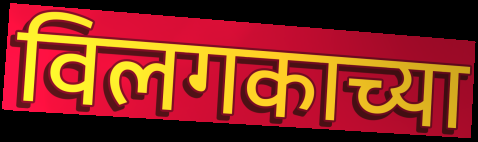
विलगकाच्या